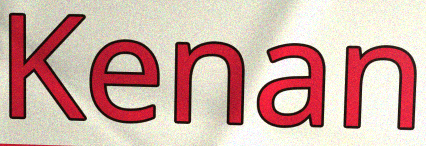
Kenan